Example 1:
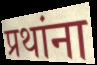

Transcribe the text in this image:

प्रथांना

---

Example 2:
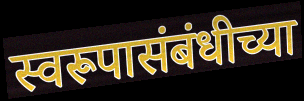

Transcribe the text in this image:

स्वरूपासंबंधीच्या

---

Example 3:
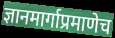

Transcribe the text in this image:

ज्ञानमार्गाप्रमाणेच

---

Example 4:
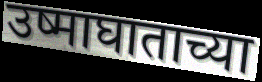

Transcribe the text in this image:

उष्माघाताच्या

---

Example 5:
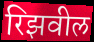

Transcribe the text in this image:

रिझवील